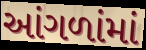
આંગળાંમાં